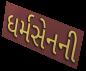
ધર્મસેનની